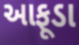
આફૂડા